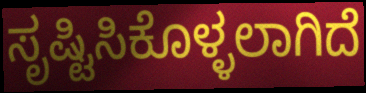
ಸೃಷ್ಟಿಸಿಕೊಳ್ಳಲಾಗಿದೆ